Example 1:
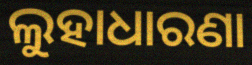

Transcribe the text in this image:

ଲୁହାଧାରଣା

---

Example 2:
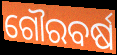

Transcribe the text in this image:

ଗୌରବର୍ଷ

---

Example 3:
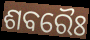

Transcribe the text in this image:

ଶବରୈଃ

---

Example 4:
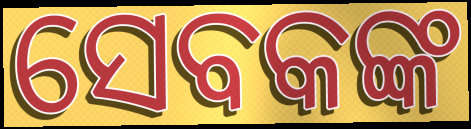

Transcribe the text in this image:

ସେବକଙ୍କ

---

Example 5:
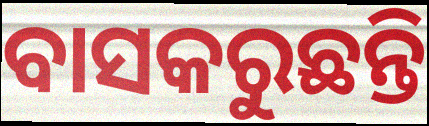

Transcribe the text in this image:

ବାସକରୁଛନ୍ତି